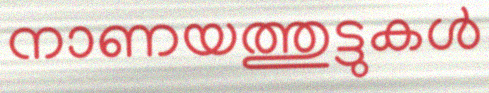
നാണയത്തുട്ടുകൾ